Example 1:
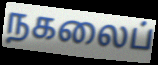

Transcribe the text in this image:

நகலைப்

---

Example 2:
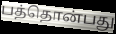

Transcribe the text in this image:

பத்தொன்பது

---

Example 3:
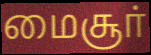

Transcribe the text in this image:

மைசூர்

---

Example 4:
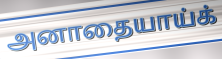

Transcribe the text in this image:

அனாதையாய்க்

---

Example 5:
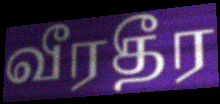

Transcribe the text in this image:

வீரதீர